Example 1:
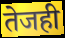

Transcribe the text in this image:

तेजही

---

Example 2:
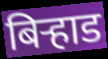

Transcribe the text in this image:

बिऱ्हाड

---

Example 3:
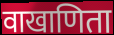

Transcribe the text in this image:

वाखाणिता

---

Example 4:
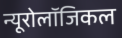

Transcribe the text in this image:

न्यूरोलॉजिकल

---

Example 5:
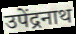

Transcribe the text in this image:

उपेंद्रनाथ